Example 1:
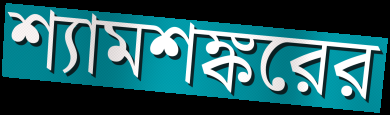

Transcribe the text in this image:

শ্যামশঙ্করের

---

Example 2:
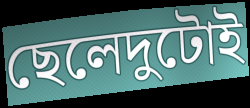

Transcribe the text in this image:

ছেলেদুটোই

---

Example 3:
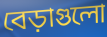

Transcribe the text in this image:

বেড়াগুলো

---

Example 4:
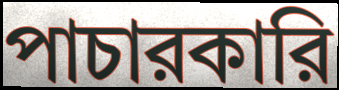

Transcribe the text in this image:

পাচারকারি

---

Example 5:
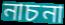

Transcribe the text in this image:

নাচনা